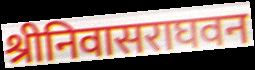
श्रीनिवासराघवन